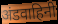
अंडवाहिनी